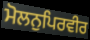
ਮੋਲਨੁਪਿਰਵੀਰ